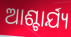
ଆଶ୍ଚାର୍ଯ୍ୟ